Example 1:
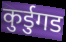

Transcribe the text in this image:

कुर्डुगड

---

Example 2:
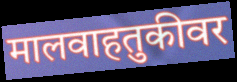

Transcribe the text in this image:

मालवाहतुकीवर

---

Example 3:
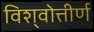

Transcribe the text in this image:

विश्वोत्तीर्ण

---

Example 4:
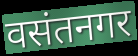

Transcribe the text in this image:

वसंतनगर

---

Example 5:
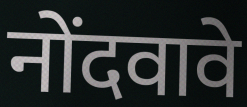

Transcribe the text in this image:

नोंदवावे